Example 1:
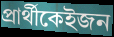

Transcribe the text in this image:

প্ৰাৰ্থীকেইজন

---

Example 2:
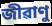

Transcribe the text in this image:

জীৱাণু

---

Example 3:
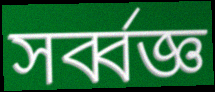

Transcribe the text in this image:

সৰ্ব্বজ্ঞ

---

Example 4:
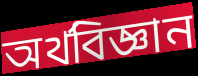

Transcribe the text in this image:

অৰ্থবিজ্ঞান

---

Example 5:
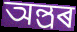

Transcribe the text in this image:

অন্ত্ৰৰ